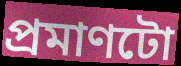
প্ৰমাণটো